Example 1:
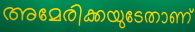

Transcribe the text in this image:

അമേരിക്കയുടേതാണ്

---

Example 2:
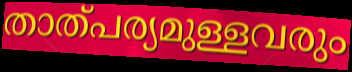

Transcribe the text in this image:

താത്പര്യമുള്ളവരും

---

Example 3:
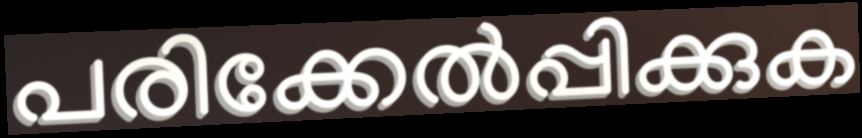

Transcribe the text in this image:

പരിക്കേൽപ്പിക്കുക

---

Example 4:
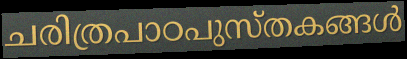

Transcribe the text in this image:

ചരിത്രപാഠപുസ്തകങ്ങൾ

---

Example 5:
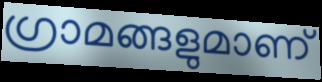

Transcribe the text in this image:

ഗ്രാമങ്ങളുമാണ്